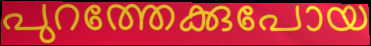
പുറത്തേക്കുപോയ